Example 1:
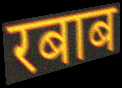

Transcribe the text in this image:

रबाब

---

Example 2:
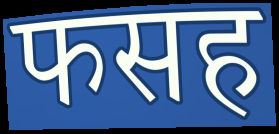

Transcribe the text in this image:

फसह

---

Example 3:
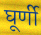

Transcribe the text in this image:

घूर्णी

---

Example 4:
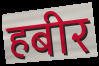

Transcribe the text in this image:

हबीर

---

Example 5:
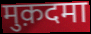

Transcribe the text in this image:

मुक़दमा